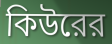
কিউরের